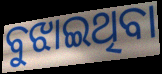
ବୁଝାଇଥିବା